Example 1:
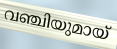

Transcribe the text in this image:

വഞ്ചിയുമായ്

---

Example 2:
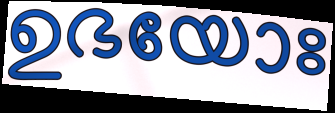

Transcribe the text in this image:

ഉഭയോഃ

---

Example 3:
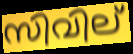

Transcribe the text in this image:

സിവില്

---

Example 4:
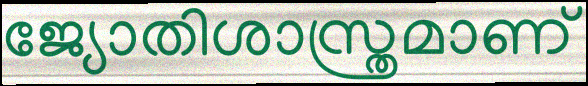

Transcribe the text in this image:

ജ്യോതിശാസ്ത്രമാണ്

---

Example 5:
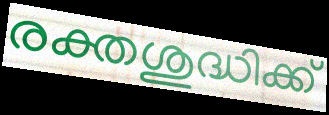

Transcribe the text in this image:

രക്തശുദ്ധിക്ക്